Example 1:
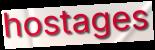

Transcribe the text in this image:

hostages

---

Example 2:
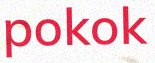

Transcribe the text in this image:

pokok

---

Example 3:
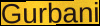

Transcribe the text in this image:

Gurbani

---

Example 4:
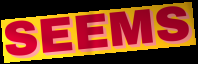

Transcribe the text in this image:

SEEMS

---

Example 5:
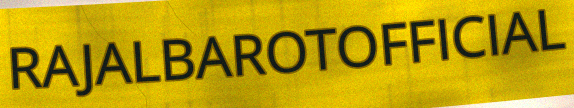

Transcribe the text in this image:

RAJALBAROTOFFICIAL